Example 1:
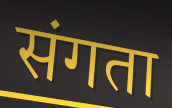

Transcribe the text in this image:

संगता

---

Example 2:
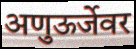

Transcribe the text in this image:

अणुऊर्जेवर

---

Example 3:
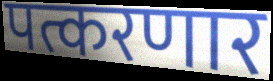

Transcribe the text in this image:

पत्करणार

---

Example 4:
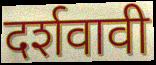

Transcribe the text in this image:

दर्शवावी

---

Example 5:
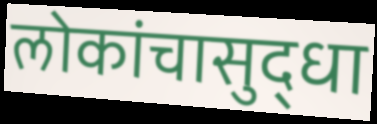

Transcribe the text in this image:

लोकांचासुद्धा